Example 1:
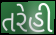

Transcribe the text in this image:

તરેહી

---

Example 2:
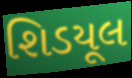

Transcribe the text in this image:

શિડયૂલ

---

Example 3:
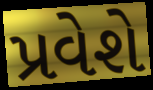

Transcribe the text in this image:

પ્રવેશે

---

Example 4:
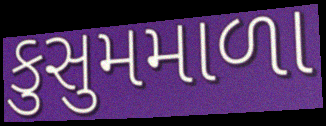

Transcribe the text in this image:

કુસુમમાળા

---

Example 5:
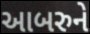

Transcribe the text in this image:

આબરુને